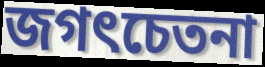
জগৎচেতনা